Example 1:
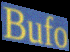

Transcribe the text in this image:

Bufo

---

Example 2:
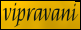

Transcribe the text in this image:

vipravani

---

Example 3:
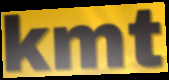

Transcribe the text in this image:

kmt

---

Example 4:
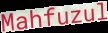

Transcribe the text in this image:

Mahfuzul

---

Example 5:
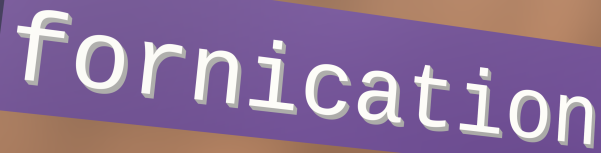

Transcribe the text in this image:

fornication